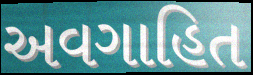
અવગાહિત